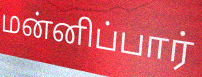
மன்னிப்பார்